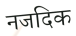
नजदिक